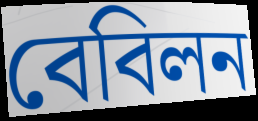
বেবিলন